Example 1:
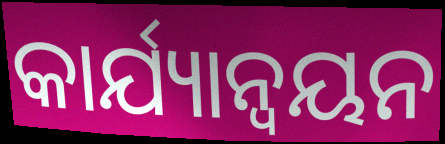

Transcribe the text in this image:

କାର୍ଯ୍ୟାନ୍ଵୟନ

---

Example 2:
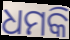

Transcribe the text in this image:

ଧମକି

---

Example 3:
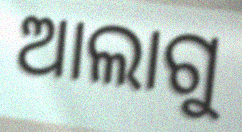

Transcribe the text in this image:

ଆଲାଗୁ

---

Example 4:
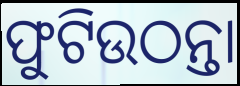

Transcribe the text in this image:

ଫୁଟିଉଠନ୍ତା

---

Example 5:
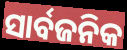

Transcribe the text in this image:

ସାର୍ବଜନିକ